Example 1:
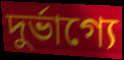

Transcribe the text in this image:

দুর্ভাগ্যে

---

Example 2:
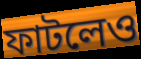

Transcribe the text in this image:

ফাটলেও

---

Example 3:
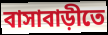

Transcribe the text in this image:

বাসাবাড়ীতে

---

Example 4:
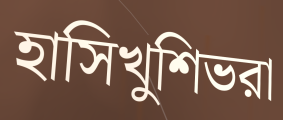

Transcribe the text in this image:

হাসিখুশিভরা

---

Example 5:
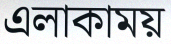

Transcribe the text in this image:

এলাকাময়